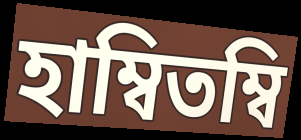
হাম্বিতম্বি